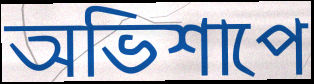
অভিশাপে